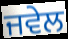
ਜਵੇਲ